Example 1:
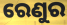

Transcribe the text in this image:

ରେଣୁର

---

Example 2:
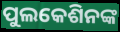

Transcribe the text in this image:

ପୁଲକେଶିନଙ୍କ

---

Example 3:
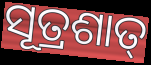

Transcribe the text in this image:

ସୂତ୍ରଶାତ୍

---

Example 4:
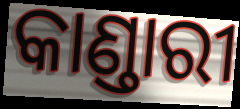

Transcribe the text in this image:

କାଣ୍ଡାରୀ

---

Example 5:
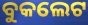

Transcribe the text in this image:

ବୁକଲେଟ